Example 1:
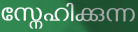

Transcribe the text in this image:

സ്നേഹിക്കുന്ന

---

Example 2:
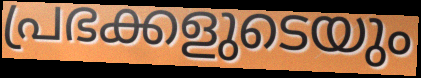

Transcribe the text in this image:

പ്രഭക്കളുടെയും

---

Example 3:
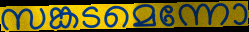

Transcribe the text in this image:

സങ്കടമെന്നോ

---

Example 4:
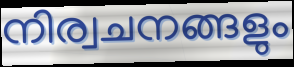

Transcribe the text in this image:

നിര്വചനങ്ങളും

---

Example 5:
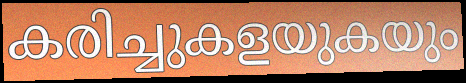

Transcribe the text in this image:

കരിച്ചുകളയുകയും